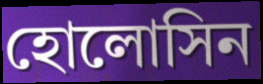
হোলোসিন